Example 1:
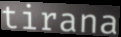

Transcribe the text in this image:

tirana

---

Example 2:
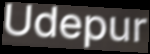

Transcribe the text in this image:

Udepur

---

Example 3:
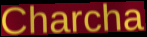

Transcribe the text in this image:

Charcha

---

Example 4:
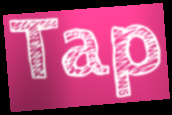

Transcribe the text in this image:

Tap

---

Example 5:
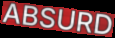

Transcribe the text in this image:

ABSURD